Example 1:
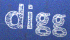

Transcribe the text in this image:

digg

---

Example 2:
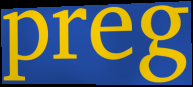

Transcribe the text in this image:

preg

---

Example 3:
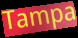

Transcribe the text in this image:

Tampa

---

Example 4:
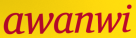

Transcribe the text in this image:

awanwi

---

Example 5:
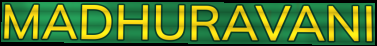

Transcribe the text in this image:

MADHURAVANI